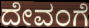
ದೇವಂಗೆ